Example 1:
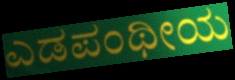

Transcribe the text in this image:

ಎಡಪಂಥೀಯ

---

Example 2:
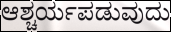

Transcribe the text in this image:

ಆಶ್ಚರ್ಯಪಡುವುದು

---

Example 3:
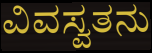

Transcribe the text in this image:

ವಿವಸ್ವತನು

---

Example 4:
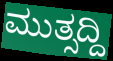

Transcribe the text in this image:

ಮುತ್ಸದ್ದಿ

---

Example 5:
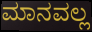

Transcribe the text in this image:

ಮಾನವಲ್ಲ